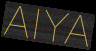
AIYA